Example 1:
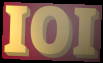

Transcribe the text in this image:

IOI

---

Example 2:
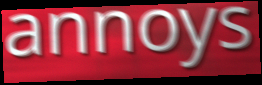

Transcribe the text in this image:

annoys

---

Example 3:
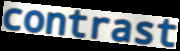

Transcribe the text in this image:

contrast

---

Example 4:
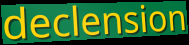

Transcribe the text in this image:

declension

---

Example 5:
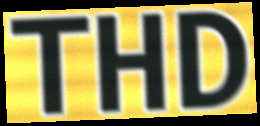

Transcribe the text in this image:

THD